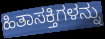
ಹಿತಾಸಕ್ತಿಗಳನ್ನು